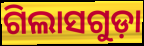
ଗିଲାସଗୁଡ଼ା